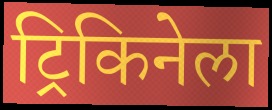
ट्रिकिनेला